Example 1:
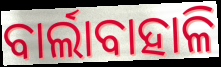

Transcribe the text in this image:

ବାର୍ଲାବାହାଳି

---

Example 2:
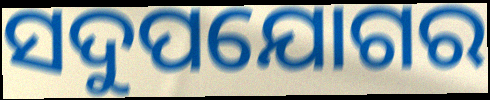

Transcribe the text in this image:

ସଦୁପଯୋଗର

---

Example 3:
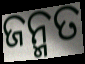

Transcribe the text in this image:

ଜନ୍ମତ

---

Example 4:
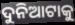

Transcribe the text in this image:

ଦୁନିଆଟାକୁ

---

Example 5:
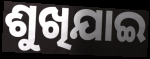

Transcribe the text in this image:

ଶୁଖିଯାଇ